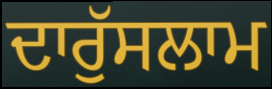
ਦਾਰੁੱਸਲਾਮ